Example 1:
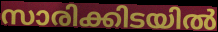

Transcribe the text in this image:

സാരിക്കിടയിൽ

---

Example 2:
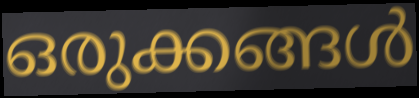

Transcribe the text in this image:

ഒരുക്കങ്ങൾ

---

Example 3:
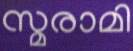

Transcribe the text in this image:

സ്മരാമി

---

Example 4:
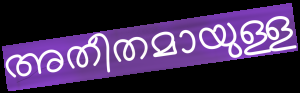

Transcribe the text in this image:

അതീതമായുള്ള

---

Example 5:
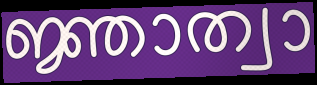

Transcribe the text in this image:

ജ്ഞാത്വാ